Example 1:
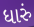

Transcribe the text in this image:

ધારું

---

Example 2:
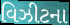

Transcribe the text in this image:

વિઝીટના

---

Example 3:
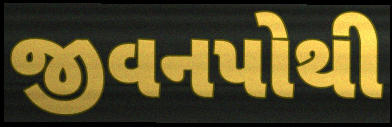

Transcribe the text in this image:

જીવનપોથી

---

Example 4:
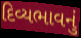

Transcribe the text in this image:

દિવ્યભાવનું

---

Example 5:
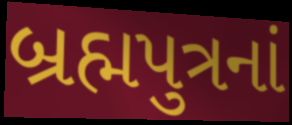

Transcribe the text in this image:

બ્રહ્મપુત્રનાં